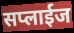
सप्लाईज